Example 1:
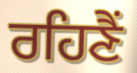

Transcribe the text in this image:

ਰਹਿਣੈਂ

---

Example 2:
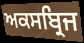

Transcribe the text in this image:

ਅਕਸਬ੍ਰਿਜ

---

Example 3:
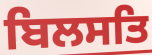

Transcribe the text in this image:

ਬਿਲਸਤਿ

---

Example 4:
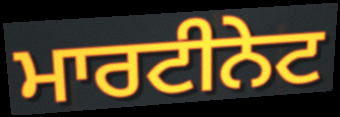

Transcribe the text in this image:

ਮਾਰਟੀਨੇਟ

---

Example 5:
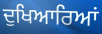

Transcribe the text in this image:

ਦੁਖਿਆਰਿਆਂ